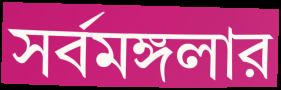
সর্বমঙ্গলার